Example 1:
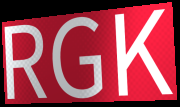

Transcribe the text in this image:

RGK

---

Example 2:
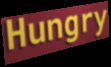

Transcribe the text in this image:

Hungry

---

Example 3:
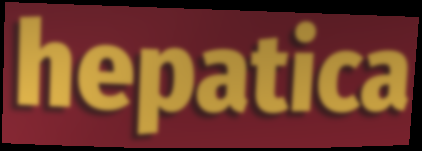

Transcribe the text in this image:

hepatica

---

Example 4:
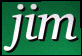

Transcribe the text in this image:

jim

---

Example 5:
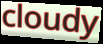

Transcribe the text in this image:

cloudy